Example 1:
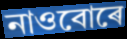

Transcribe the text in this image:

নাওবোৰে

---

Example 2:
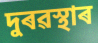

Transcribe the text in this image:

দুৰৱস্থাৰ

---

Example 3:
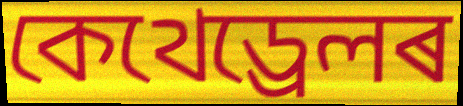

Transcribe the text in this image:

কেথেড্ৰেলৰ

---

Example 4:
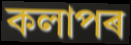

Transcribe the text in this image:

কলাপৰ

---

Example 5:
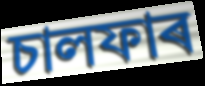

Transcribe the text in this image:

চালফাৰ